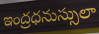
ఇంద్రధనుస్సులా